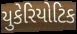
યુકેરિયોટિક